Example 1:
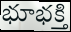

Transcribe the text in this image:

భూభక్తి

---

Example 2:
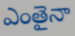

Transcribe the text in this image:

ఎంతైనా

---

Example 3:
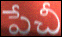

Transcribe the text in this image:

పేచీ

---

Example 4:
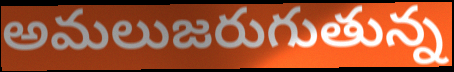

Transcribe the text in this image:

అమలుజరుగుతున్న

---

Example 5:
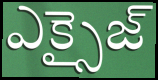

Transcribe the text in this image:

ఎక్సైజ్